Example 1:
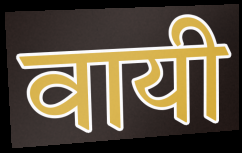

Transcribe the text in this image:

वायी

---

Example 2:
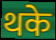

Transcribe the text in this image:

थके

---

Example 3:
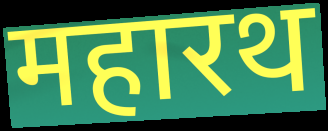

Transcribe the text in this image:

महारथ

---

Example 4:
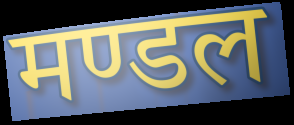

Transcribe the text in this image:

मण्डल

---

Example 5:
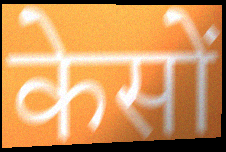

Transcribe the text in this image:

केसों